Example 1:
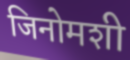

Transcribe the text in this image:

जिनोमशी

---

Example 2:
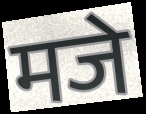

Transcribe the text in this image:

मजे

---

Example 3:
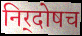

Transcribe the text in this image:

निर्दोषच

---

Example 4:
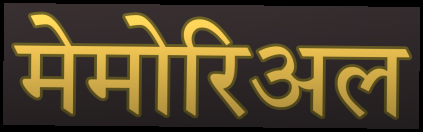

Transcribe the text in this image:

मेमोरिअल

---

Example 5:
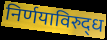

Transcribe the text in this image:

निर्णयाविरुद्ध